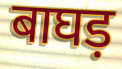
बाघड़